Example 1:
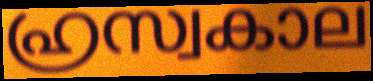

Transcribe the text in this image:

ഹ്രസ്വകാല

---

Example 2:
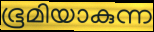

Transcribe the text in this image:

ഭൂമിയാകുന്ന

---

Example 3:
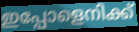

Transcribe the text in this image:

ഇപ്പോളെനിക്ക്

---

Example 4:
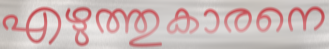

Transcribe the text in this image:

എഴുത്തുകാരനെ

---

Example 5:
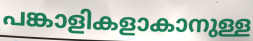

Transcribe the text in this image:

പങ്കാളികളാകാനുള്ള